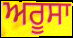
ਅਰੂਸਾ